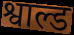
श्वाल्ड